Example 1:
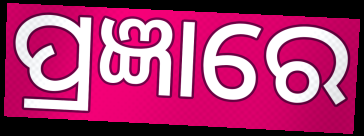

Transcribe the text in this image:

ପ୍ରଜ୍ଞାରେ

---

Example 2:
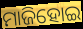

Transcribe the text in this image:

ମାଜିହୋଇ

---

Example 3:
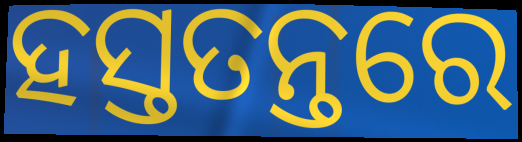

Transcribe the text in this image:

ହସ୍ତତନ୍ତରେ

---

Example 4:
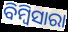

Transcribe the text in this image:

ବିମ୍ବିସାରା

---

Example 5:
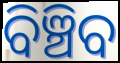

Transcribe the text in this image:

ବିଞ୍ଚିବ